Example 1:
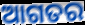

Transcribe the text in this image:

ଆଗତର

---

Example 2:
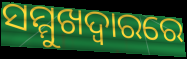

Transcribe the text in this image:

ସମ୍ମୁଖଦ୍ୱାରରେ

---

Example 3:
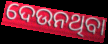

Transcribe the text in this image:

ଦେଉନଥିବା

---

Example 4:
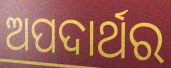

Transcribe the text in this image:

ଅପଦାର୍ଥର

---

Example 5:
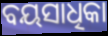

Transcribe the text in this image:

ବୟସାଧିକା